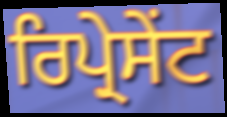
ਰਿਪ੍ਰੇਸੇੰਟ